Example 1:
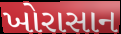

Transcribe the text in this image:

ખોરાસાન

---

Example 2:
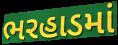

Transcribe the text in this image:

ભરહાડમાં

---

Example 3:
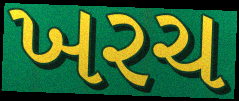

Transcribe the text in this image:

ખરચ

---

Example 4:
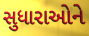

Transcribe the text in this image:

સુધારાઓને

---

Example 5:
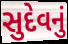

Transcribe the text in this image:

સુદેવનું